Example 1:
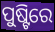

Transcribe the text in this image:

ପୁଷ୍ଟିରେ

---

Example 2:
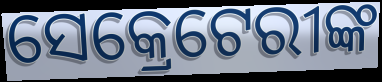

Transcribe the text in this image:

ସେକ୍ରେଟେରୀଙ୍କ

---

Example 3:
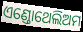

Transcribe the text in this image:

ଏଣ୍ଡୋଥେଲିଅମ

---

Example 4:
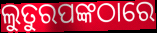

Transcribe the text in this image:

ଲୁତୁରପଙ୍କଠାରେ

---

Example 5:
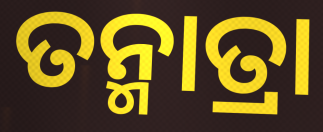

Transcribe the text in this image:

ତନ୍ମାତ୍ରା